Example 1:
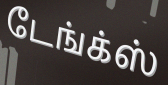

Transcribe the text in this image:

டேங்க்ஸ்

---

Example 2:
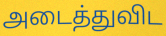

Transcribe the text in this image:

அடைத்துவிட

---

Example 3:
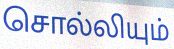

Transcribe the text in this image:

சொல்லியும்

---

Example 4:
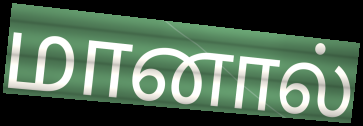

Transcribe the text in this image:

மானால்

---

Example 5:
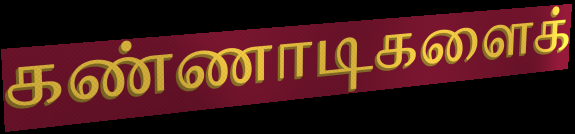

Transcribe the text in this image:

கண்ணாடிகளைக்